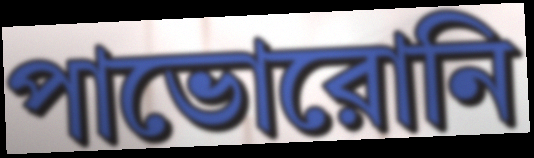
পাভোরোনি